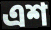
এশ